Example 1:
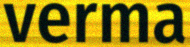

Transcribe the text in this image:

verma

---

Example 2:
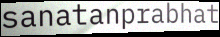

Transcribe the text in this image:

sanatanprabhat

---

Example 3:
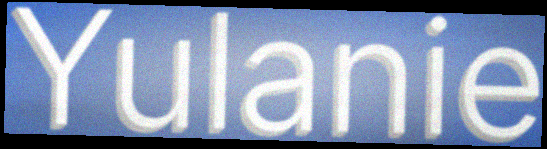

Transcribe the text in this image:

Yulanie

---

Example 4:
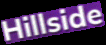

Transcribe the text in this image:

Hillside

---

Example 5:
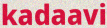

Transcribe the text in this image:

kadaavi